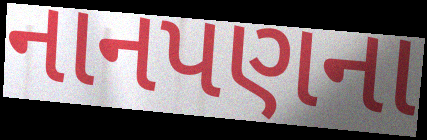
નાનપણના